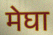
मेघा